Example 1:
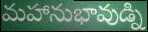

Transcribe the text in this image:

మహానుభావుడ్ని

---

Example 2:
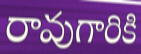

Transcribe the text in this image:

రావుగారికి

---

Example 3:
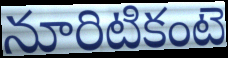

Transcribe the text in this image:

నూరిటికంటె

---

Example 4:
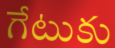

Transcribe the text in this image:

గేటుకు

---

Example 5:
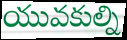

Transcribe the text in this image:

యువకుల్ని